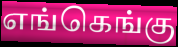
எங்கெங்கு